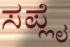
ಸಪ್ಲೈ